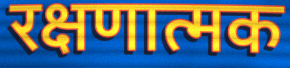
रक्षणात्मक